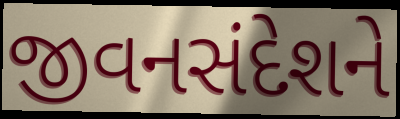
જીવનસંદેશને